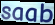
saab